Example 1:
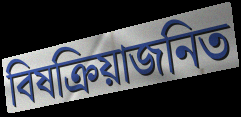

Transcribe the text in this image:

বিষক্রিয়াজনিত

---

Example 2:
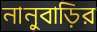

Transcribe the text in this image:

নানুবাড়ির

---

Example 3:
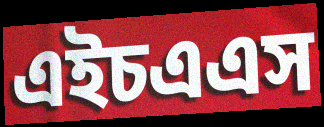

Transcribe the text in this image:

এইচএএস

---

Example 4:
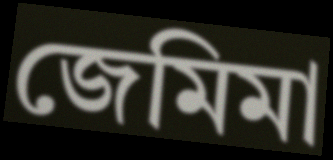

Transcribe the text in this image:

জেমিমা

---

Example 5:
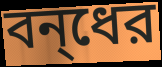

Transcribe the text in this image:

বন্‌ধের